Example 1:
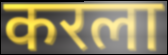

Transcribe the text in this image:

करला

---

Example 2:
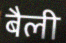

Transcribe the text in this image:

बैली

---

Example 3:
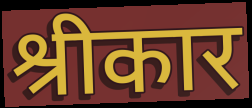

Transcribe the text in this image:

श्रीकार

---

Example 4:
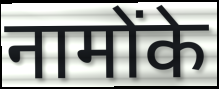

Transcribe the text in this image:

नामोंके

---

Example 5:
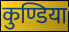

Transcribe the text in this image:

कुण्डिया